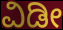
ವಿಡೀ